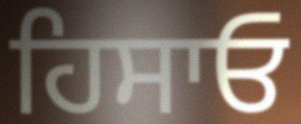
ਹਿਸਾਓ